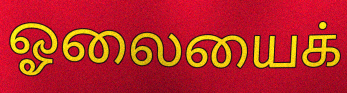
ஓலையைக்